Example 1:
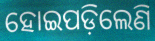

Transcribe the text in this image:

ହୋଇପଡ଼ିଲେଣି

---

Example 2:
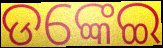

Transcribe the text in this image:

ଡଙ୍କେଇ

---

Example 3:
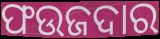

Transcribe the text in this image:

ଫଉଜଦାର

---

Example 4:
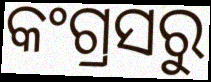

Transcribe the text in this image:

କଂଗ୍ରସରୁ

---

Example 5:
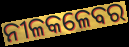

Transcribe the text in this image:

ନୀଳକଳେବର